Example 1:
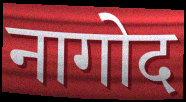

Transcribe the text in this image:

नागोद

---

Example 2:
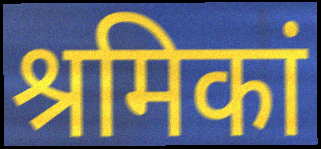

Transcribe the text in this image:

श्रमिकां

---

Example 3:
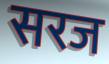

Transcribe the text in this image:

सरज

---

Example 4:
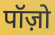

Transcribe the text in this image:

पॉज़ो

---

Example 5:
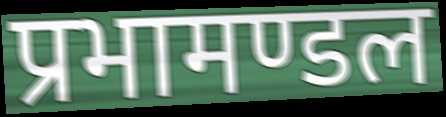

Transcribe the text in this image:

प्रभामण्डल